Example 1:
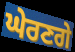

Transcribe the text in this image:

ਘੇਰਣਗੇ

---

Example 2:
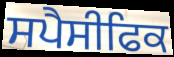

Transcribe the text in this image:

ਸਪੈਸੀਫਿਕ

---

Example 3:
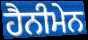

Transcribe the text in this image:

ਹੈਨੀਮੇਨ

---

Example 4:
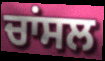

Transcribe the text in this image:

ਚਾਂਸਲ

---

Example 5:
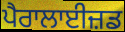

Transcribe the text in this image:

ਪੈਰਾਲਾਈਜ਼ਡ